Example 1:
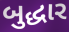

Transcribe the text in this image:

બુદ્ધાર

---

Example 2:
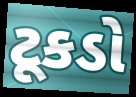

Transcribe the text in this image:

ટૂકડો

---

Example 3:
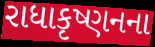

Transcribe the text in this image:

રાધાકૃષ્ણનના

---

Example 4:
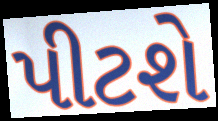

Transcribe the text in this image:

પીટશે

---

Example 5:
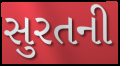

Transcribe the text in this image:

સુરતની